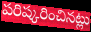
పరిష్కరించినట్లు